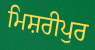
ਮਿਸ਼ਰੀਪੁਰ